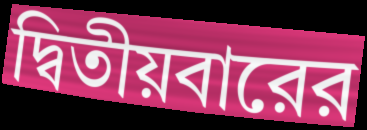
দ্বিতীয়বারের